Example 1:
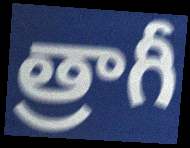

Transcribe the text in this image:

త్రాగీ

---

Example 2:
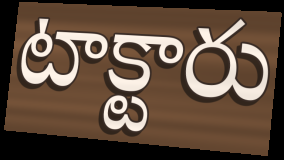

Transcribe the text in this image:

టాక్టారు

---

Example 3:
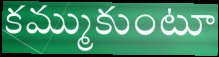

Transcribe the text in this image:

కమ్ముకుంటూ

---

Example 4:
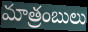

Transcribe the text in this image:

మాత్రంబులు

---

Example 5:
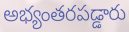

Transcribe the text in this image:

అభ్యంతరపడ్డారు